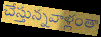
చేస్తున్నవాళ్లంతా